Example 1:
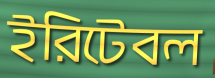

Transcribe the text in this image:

ইরিটেবল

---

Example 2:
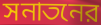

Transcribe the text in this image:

সনাতনের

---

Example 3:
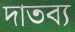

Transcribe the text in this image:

দাতব্য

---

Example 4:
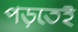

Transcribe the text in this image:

পড়তেই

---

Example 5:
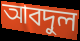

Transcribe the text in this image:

আবদুল